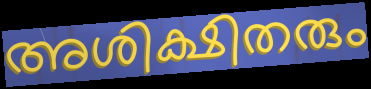
അശിക്ഷിതരും